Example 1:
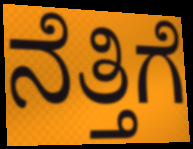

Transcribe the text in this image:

ನೆತ್ತಿಗೆ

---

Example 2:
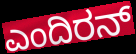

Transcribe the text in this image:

ಎಂದಿರನ್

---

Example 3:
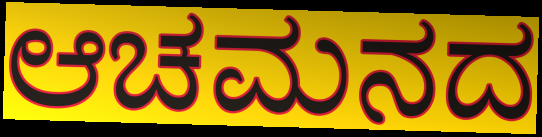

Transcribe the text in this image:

ಆಚಮನದ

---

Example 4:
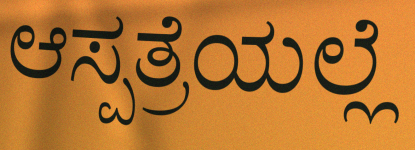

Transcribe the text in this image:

ಆಸ್ಪತ್ರೆಯಲ್ಲೆ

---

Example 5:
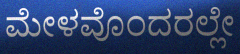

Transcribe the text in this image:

ಮೇಳವೊಂದರಲ್ಲೇ